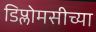
डिप्लोमसीच्या